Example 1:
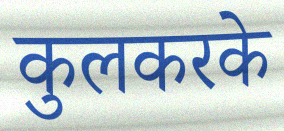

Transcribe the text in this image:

कुलकरके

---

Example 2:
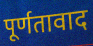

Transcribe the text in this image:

पूर्णतावाद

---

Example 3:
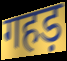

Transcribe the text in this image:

गहड़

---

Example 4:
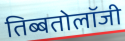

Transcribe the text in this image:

तिब्बतोलॉजी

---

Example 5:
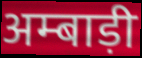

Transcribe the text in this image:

अम्बाड़ी